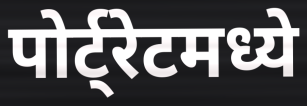
पोर्ट्रेटमध्ये